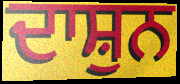
ਦਾਸ਼ੁਨ